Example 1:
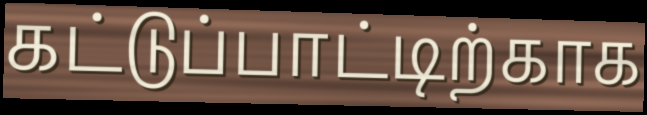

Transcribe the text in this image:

கட்டுப்பாட்டிற்காக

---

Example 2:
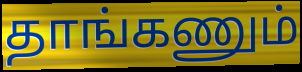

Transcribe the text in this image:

தாங்கணும்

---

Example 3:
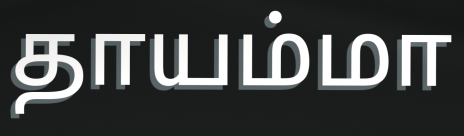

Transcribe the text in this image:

தாயம்மா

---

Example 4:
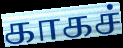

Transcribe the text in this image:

காகச்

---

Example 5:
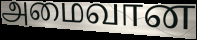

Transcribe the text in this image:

அமைவான